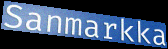
Sanmarkka